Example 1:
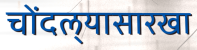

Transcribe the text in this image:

चोंदल्यासारखा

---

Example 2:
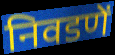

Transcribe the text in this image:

निवडणें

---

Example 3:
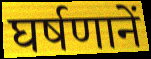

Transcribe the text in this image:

घर्षणानें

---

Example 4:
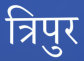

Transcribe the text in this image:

त्रिपुर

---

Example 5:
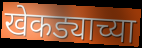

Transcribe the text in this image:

खेकड्याच्या